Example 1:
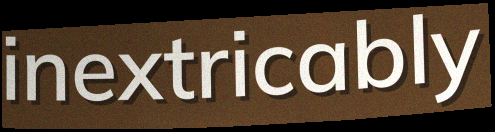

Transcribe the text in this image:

inextricably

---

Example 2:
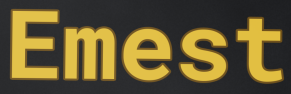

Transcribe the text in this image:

Emest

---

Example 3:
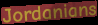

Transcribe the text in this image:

Jordanians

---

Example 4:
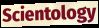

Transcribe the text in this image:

Scientology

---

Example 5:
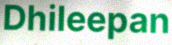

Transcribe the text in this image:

Dhileepan